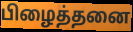
பிழைத்தனை